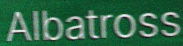
Albatross